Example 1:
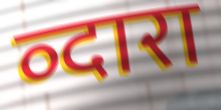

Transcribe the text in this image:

व्दारा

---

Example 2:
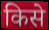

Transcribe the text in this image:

किसे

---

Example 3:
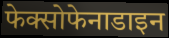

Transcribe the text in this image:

फेक्सोफेनाडाइन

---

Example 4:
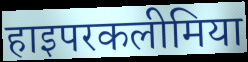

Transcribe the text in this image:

हाइपरकलीमिया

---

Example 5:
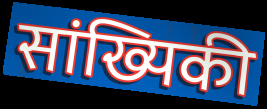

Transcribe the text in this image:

सांख्यिकी